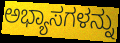
ಅಭ್ಯಾಸಗಳನ್ನು